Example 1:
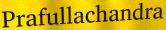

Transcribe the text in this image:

Prafullachandra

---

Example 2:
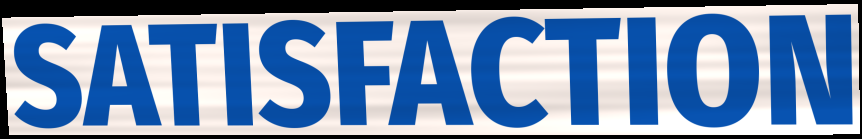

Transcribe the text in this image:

SATISFACTION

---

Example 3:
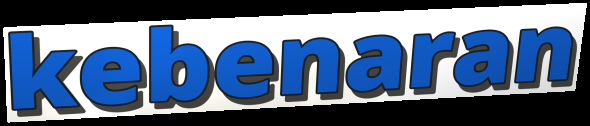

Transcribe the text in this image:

kebenaran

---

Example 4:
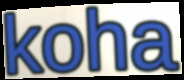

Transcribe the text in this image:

koha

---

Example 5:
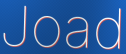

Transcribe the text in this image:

Joad